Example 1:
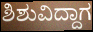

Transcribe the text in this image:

ಶಿಶುವಿದ್ದಾಗ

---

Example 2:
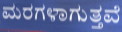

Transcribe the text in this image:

ಮರಗಳಾಗುತ್ತವೆ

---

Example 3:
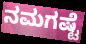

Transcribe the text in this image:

ನಮಗಷ್ಟೆ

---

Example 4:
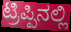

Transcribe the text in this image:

ಟ್ರಿಪ್ಪಿನಲ್ಲಿ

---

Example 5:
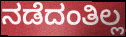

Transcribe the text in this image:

ನಡೆದಂತಿಲ್ಲ